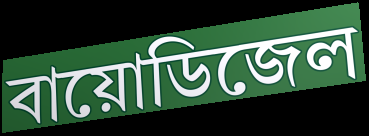
বায়োডিজেল